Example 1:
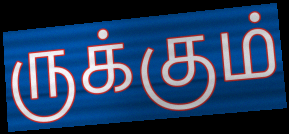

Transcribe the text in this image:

ருக்கும்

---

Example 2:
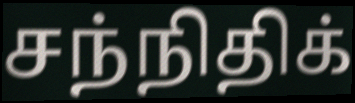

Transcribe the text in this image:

சந்நிதிக்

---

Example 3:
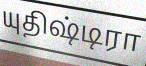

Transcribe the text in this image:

யுதிஷ்டிரா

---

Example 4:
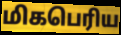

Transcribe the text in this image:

மிகபெரிய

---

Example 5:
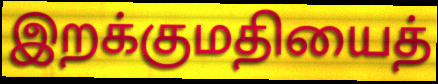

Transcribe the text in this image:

இறக்குமதியைத்